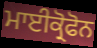
ਮਾਈਕ੍ਰੋਫੋਨ